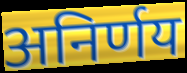
अनिर्णय